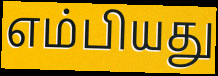
எம்பியது